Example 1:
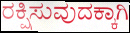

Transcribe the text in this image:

ರಕ್ಷಿಸುವುದಕ್ಕಾಗಿ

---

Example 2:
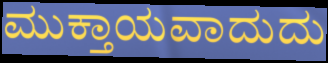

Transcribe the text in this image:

ಮುಕ್ತಾಯವಾದುದು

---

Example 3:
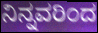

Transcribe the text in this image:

ನಿನ್ನವರಿಂದ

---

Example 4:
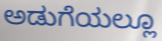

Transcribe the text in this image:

ಅಡುಗೆಯಲ್ಲೂ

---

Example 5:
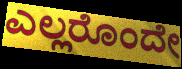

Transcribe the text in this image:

ಎಲ್ಲರೊಂದೇ